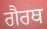
ਗੈਰਥ